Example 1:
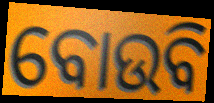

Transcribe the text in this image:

ବୋଉବି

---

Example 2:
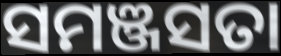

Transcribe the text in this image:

ସମଞ୍ଜସତା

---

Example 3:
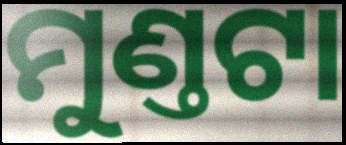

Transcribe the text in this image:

ମୁଣ୍ତଟା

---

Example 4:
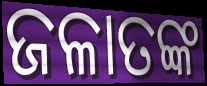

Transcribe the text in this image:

ଜଳାତଙ୍କ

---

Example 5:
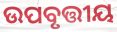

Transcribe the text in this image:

ଉପବୃତ୍ତୀୟ